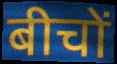
बीचों